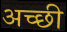
अच्‍छी